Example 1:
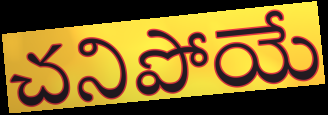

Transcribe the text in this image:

చనిపోయే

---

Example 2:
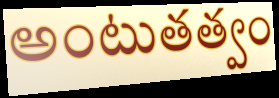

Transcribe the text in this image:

అంటుతత్వం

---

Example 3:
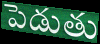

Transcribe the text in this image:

పెడుతు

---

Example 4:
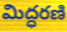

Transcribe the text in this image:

మిద్ధరణి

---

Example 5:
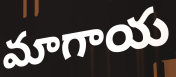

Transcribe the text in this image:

మాగాయ